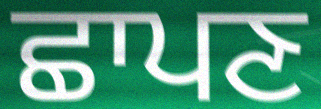
ਛਾਪਣ